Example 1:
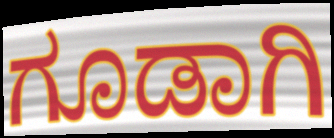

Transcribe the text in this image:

ಗೂಡಾಗಿ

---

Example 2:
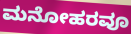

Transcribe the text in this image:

ಮನೋಹರವೂ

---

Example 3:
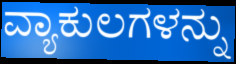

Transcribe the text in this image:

ವ್ಯಾಕುಲಗಳನ್ನು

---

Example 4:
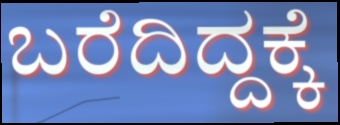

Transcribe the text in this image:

ಬರೆದಿದ್ದಕ್ಕೆ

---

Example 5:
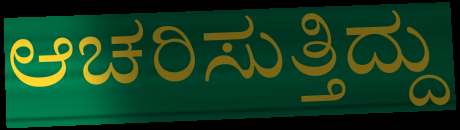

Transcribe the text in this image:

ಆಚರಿಸುತ್ತಿದ್ದು